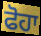
ਫੋਹਾ